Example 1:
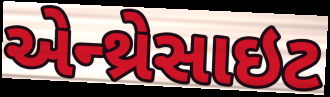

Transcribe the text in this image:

એન્થ્રેસાઇટ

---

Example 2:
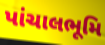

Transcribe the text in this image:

પાંચાલભૂમિ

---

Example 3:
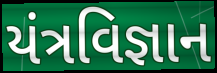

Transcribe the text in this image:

યંત્રવિજ્ઞાન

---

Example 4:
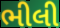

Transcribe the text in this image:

ભીલી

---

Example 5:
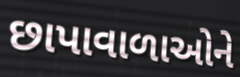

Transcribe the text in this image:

છાપાવાળાઓને